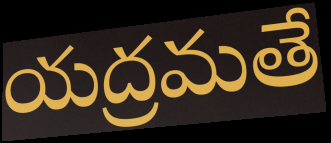
యద్రమతే